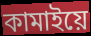
কামাইয়ে